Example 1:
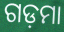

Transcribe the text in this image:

ଗଡ଼ମା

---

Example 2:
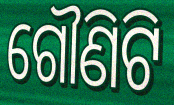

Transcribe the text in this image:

ଗୌଣିଟି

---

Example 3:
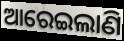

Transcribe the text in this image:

ଆରେଇଲାଣି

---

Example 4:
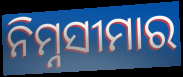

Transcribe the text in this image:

ନିମ୍ନସୀମାର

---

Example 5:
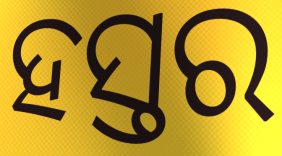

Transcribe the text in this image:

ହସ୍ତର